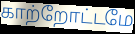
காற்றோட்டமே